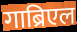
गाब्रिएल